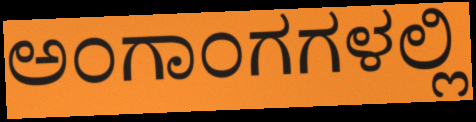
ಅಂಗಾಂಗಗಳಲ್ಲಿ